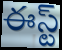
ఈస్ట్